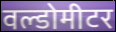
वल्डोमीटर